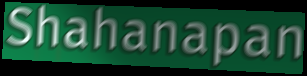
Shahanapan